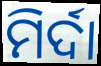
ମିର୍ଦା